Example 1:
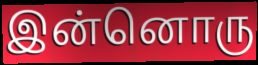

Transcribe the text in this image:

இன்னொரு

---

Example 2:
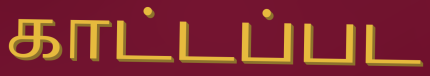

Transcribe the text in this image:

காட்டப்பட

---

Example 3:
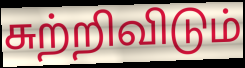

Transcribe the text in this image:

சுற்றிவிடும்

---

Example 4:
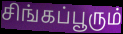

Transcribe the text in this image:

சிங்கப்பூரும்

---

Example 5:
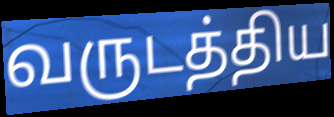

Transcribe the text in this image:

வருடத்திய